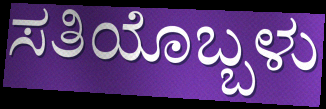
ಸತಿಯೊಬ್ಬಳು